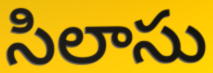
సిలాసు